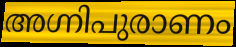
അഗ്നിപുരാണം